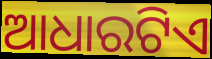
ଆଧାରଟିଏ